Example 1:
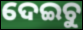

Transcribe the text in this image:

ଦେଇଚୁ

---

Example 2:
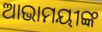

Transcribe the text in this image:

ଆଭାମୟୀଙ୍କ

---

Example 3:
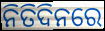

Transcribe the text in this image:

ନିତିଦିନରେ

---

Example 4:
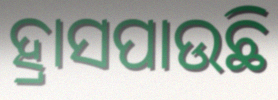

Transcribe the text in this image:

ହ୍ରାସପାଉଛି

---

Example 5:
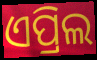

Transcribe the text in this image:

ଏପ୍ରିଲ